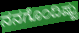
ನನಗೊಂದಿಷ್ಟು